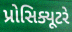
પ્રોસિક્યૂટરે